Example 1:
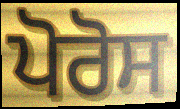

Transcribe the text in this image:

ਪੋਰੋਸ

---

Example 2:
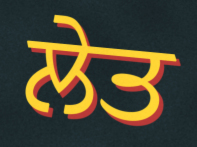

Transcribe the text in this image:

ਲੇਤ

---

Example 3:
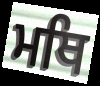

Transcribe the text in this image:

ਮਥਿ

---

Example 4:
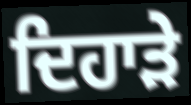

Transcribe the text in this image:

ਦਿਹਾਡ਼ੇ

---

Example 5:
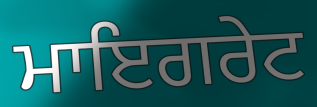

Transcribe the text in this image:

ਮਾਇਗਰੇਟ